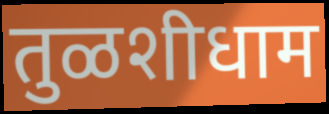
तुळशीधाम